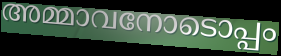
അമ്മാവനോടൊപ്പം